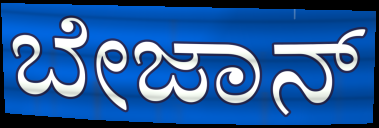
ಬೇಜಾನ್